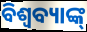
ବିଶ୍ଵବ୍ୟାଙ୍କ୍